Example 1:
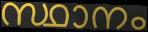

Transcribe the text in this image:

സ്ഥാനം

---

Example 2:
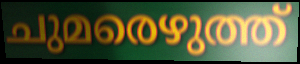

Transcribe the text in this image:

ചുമരെഴുത്ത്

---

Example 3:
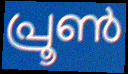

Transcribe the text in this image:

പ്രൂൺ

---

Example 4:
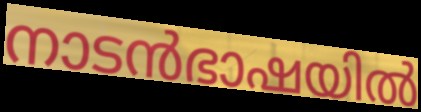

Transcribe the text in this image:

നാടൻഭാഷയിൽ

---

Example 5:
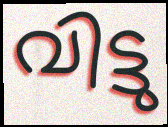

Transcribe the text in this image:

വിട്ടു